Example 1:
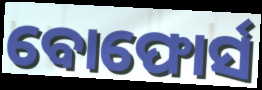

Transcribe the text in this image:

ବୋଫୋର୍ସ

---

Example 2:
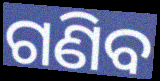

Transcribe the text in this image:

ଗଣିବ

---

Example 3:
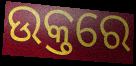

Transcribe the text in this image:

ଉକ୍ତରେ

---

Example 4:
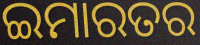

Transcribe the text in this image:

ଇମାରତର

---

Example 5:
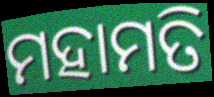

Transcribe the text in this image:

ମହାମତି